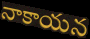
నాకాయన